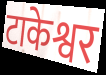
टाकेश्वर